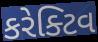
કરેક્ટિવ